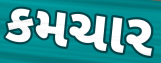
કમચાર